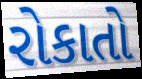
રોકાતો